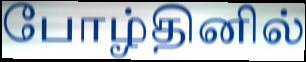
போழ்தினில்